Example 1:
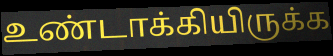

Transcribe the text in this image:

உண்டாக்கியிருக்க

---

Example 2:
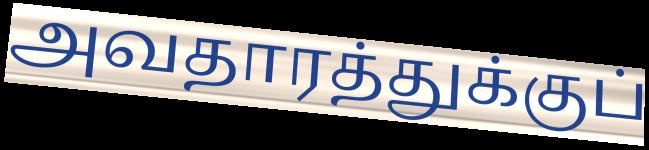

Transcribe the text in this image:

அவதாரத்துக்குப்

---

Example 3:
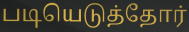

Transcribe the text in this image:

படியெடுத்தோர்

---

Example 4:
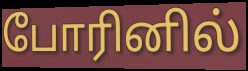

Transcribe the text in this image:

போரினில்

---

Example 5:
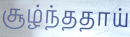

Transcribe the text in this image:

சூழ்ந்ததாய்